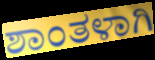
ಶಾಂತಳಾಗಿ